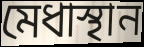
মেধাস্থান